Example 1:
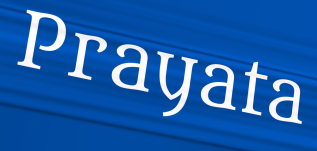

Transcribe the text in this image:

Prayata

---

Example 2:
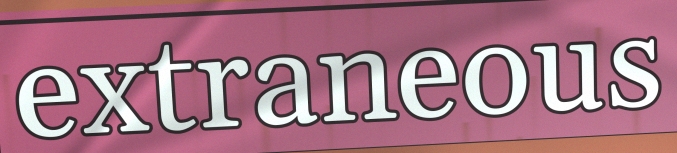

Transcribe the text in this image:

extraneous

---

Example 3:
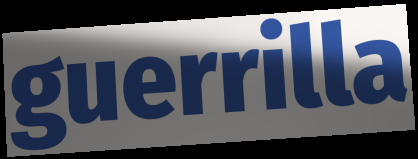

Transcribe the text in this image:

guerrilla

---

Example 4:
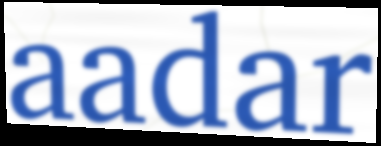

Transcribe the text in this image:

aadar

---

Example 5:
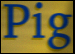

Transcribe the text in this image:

Pig